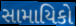
સામાયિકો